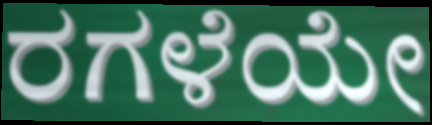
ರಗಳೆಯೇ